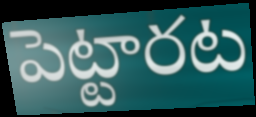
పెట్టారట